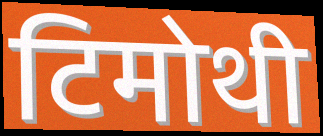
टिमोथी